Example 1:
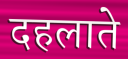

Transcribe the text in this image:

दहलाते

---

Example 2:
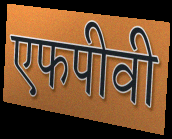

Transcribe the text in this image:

एफपीवी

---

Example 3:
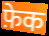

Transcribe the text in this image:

फ़ेक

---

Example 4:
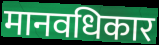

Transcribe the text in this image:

मानवधिकार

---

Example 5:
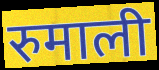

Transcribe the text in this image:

रुमाली